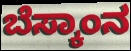
ಬೆಸ್ಕಾಂನ